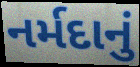
નર્મદાનું